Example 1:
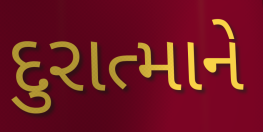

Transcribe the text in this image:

દુરાત્માને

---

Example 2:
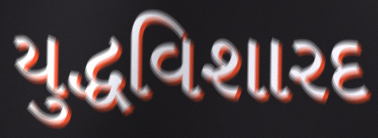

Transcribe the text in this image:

યુદ્ધવિશારદ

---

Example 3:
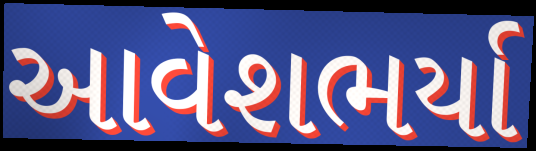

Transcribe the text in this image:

આવેશભર્યા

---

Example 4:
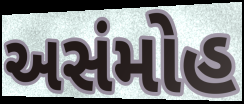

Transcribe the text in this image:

અસંમોહ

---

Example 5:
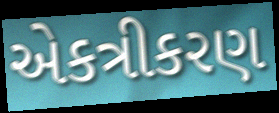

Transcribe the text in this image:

એકત્રીકરણ